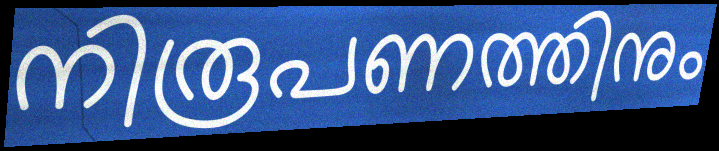
നിരൂപണത്തിനും